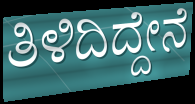
ತಿಳಿದಿದ್ದೇನೆ